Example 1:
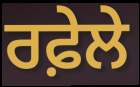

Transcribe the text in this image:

ਰਫ਼ੇਲੇ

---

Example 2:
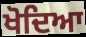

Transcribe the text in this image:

ਖੋਦਿਆ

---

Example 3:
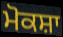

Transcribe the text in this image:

ਮੋਕਸ਼ਾ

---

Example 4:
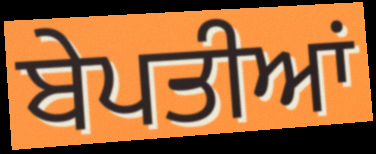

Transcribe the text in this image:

ਬੇਪਤੀਆਂ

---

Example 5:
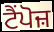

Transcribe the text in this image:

ਟੈਂਪੋਜ਼